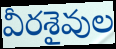
వీరశైవుల